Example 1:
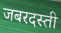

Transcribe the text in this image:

जबरदस्ती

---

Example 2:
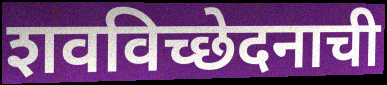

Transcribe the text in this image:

शवविच्छेदनाची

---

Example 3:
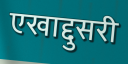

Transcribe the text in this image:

एखाद्दुसरी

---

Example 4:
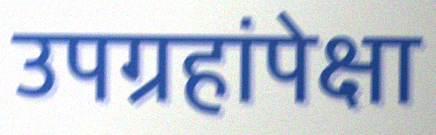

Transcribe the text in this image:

उपग्रहांपेक्षा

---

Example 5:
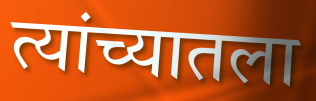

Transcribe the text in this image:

त्यांच्यातला